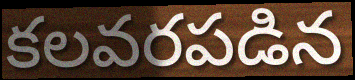
కలవరపడిన